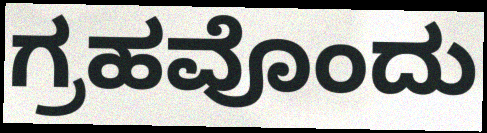
ಗ್ರಹವೊಂದು